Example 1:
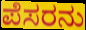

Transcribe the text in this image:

ಪೆಸರನು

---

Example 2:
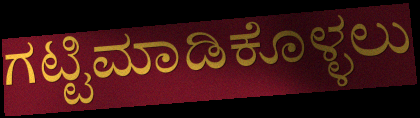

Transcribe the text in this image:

ಗಟ್ಟಿಮಾಡಿಕೊಳ್ಳಲು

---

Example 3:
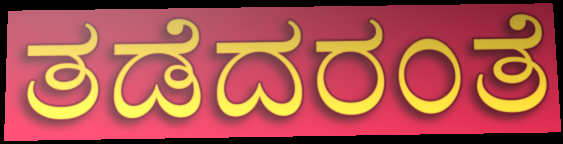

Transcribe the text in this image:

ತಡೆದರಂತೆ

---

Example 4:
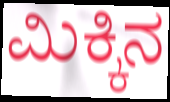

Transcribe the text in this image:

ಮಿಕ್ಕಿನ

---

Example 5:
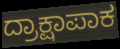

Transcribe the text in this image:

ದ್ರಾಕ್ಷಾಪಾಕ